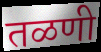
तळणी